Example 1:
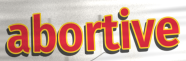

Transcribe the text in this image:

abortive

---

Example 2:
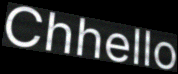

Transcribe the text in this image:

Chhello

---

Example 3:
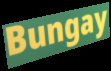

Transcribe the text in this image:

Bungay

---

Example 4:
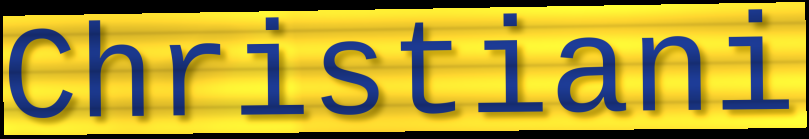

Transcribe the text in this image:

Christiani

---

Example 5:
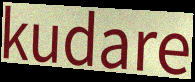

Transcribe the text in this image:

kudare